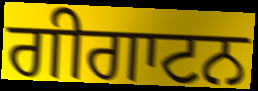
ਗੀਗਾਟਨ